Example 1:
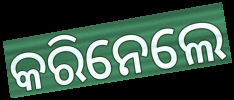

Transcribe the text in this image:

କରିନେଲେ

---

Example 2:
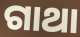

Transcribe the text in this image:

ଗାଥା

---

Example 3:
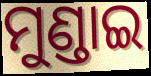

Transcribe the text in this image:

ମୁଣ୍ଡାଇ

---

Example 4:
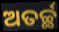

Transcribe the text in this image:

ଅତର୍ଚ୍ଛ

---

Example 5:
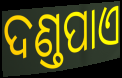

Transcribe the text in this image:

ଦଣ୍ଡପାଏ